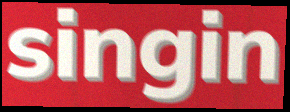
singin